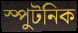
স্পুটনিক